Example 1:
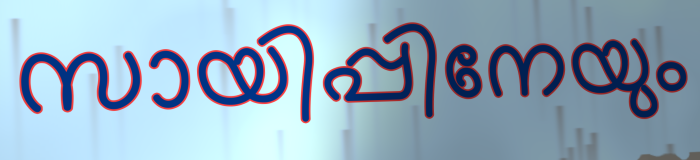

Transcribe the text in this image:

സായിപ്പിനേയും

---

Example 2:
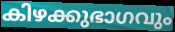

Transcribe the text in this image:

കിഴക്കുഭാഗവും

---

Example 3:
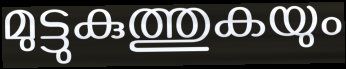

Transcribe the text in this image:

മുട്ടുകുത്തുകയും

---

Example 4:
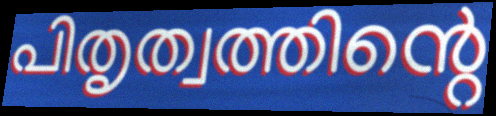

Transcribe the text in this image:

പിതൃത്വത്തിന്റെ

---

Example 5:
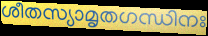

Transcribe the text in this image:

ശീതസ്യാമൃതഗന്ധിനഃ